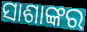
ସାଶାଙ୍କର